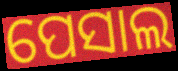
ପେସାଲ